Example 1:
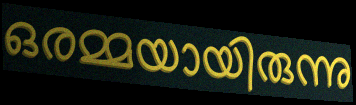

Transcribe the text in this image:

ഒരമ്മയായിരുന്നു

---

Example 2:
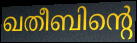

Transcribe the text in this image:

ഖതീബിന്റെ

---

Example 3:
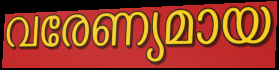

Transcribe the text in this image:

വരേണ്യമായ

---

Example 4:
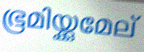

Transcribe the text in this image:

ഭൂമിയ്ക്കുമേല്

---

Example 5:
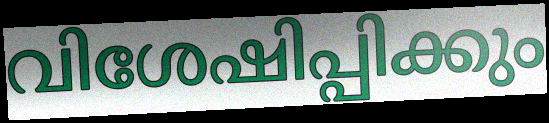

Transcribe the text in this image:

വിശേഷിപ്പിക്കും